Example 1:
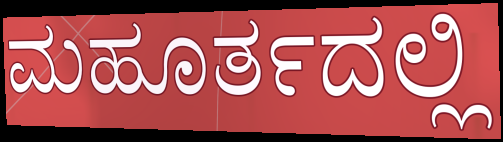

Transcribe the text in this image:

ಮಹೂರ್ತದಲ್ಲಿ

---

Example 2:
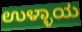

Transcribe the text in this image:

ಉಳ್ಳಾಯ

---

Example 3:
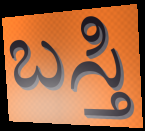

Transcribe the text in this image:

ಬಸ್ತಿ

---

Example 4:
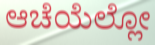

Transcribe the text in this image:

ಆಚೆಯೆಲ್ಲೋ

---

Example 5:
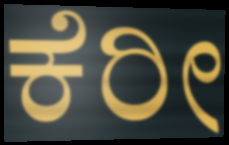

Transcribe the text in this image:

ಕೆರೀ